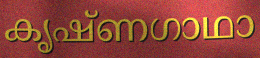
കൃഷ്ണഗാഥാ